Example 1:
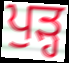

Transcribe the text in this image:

ਪੁੜ੍ਹ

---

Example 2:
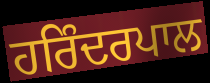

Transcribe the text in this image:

ਹਰਿੰਦਰਪਾਲ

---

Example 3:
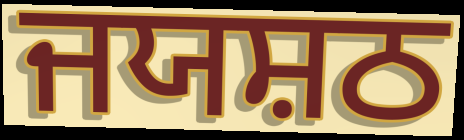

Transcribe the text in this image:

ਜਯਸ਼ਠ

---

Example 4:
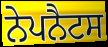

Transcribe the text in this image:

ਨੇਪਨੈਟਸ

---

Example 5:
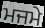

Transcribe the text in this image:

ਮਜਮੇ